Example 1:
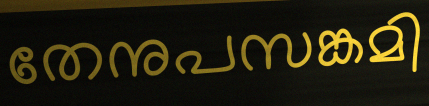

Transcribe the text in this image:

തേനുപസങ്കമി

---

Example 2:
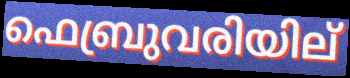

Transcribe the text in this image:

ഫെബ്രുവരിയില്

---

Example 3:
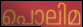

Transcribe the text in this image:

പൊലിമ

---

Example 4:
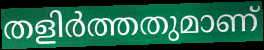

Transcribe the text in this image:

തളിർത്തതുമാണ്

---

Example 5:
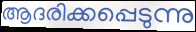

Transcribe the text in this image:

ആദരിക്കപ്പെടുന്നു